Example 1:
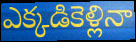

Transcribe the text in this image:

ఎక్కడికెళ్లినా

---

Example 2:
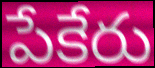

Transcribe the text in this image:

పేకేరు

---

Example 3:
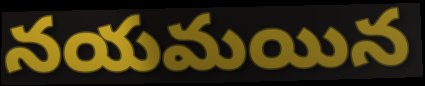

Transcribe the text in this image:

నయమయిన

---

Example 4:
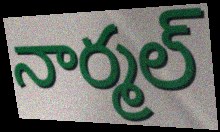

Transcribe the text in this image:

నార్మల్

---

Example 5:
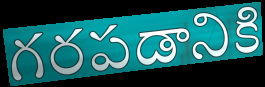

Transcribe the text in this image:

గరపడానికి